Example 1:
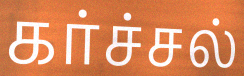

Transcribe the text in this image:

கர்ச்சல்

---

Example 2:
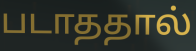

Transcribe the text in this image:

படாததால்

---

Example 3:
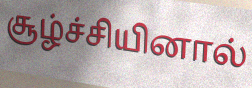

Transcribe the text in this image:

சூழ்ச்சியினால்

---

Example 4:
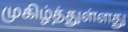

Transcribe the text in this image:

முகிழ்த்துள்ளது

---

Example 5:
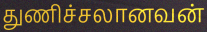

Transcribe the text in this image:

துணிச்சலானவன்